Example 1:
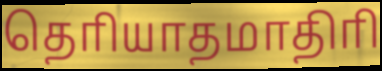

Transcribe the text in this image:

தெரியாதமாதிரி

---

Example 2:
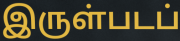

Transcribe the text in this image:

இருள்படப்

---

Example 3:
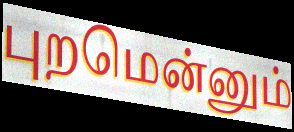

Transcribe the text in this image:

புறமென்னும்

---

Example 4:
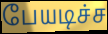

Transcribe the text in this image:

பேயடிச்ச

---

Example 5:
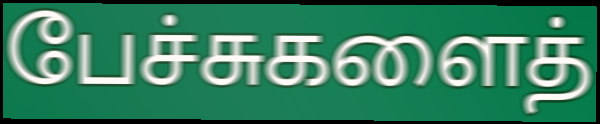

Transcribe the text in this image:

பேச்சுகளைத்